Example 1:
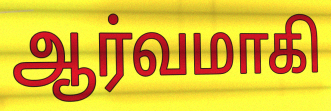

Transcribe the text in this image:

ஆர்வமாகி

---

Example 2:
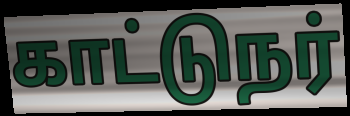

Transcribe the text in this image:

காட்டுநர்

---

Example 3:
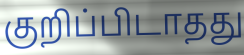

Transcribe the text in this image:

குறிப்பிடாதது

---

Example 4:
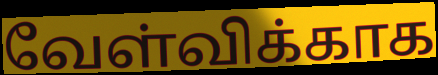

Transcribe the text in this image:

வேள்விக்காக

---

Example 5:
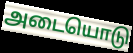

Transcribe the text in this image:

அடையொடு